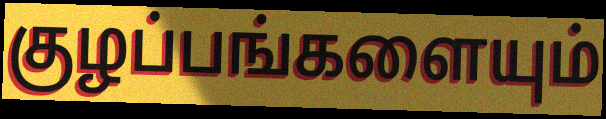
குழப்பங்களையும்